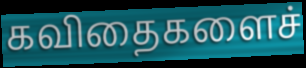
கவிதைகளைச்